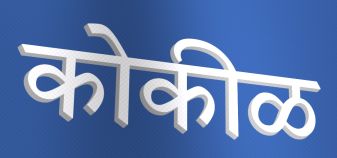
कोकीळ